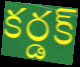
కర్డక్